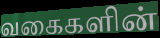
வகைகளின்